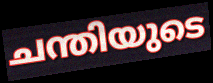
ചന്തിയുടെ